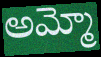
అమ్మో